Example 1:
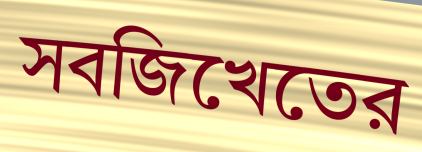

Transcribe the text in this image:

সবজিখেতের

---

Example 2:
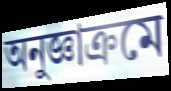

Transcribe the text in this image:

অনুজ্ঞাক্রমে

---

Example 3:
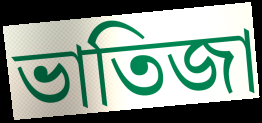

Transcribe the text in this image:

ভাতিজা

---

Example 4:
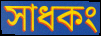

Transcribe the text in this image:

সাধকং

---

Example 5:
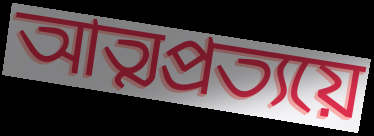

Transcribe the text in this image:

আত্মপ্রত্যয়ে